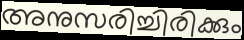
അനുസരിച്ചിരിക്കും